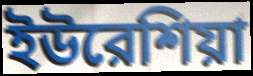
ইউরেশিয়া